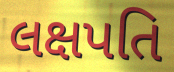
લક્ષપતિ